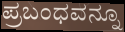
ಪ್ರಬಂಧವನ್ನೂ